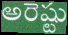
అరెష్టు